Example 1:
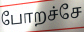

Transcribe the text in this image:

போறச்சே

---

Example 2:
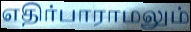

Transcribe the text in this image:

எதிர்பாராமலும்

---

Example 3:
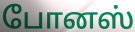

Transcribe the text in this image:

போனஸ்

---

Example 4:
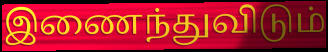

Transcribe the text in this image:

இணைந்துவிடும்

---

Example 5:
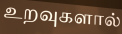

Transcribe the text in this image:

உறவுகளால்